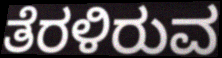
ತೆರಳಿರುವ